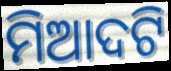
ମିଆଦଟି